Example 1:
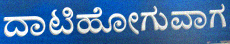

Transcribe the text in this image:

ದಾಟಿಹೋಗುವಾಗ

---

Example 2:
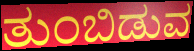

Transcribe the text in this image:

ತುಂಬಿಡುವ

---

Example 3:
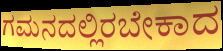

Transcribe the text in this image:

ಗಮನದಲ್ಲಿರಬೇಕಾದ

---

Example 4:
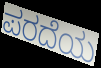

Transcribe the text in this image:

ಪರದೆಯ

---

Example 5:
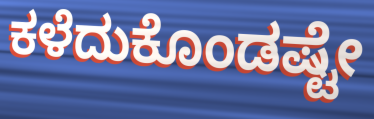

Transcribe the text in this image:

ಕಳೆದುಕೊಂಡಷ್ಟೇ